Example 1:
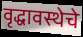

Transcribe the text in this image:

वृद्धावस्थेचे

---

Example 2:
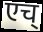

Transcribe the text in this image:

एच्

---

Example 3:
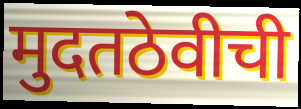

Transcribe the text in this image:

मुदतठेवीची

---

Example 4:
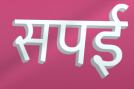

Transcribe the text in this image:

सपई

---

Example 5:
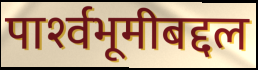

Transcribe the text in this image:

पार्श्वभूमीबद्दल